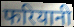
फरियानी